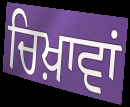
ਚਿਖ਼ਾਵਾਂ